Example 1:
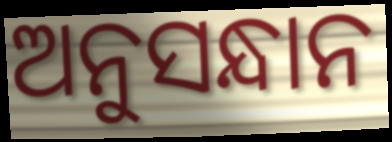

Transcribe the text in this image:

ଅନୁସନ୍ଧାନ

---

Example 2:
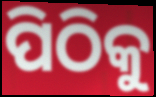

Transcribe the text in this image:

ପିଠିକୁ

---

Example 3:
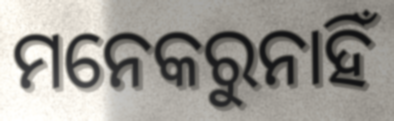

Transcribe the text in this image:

ମନେକରୁନାହିଁ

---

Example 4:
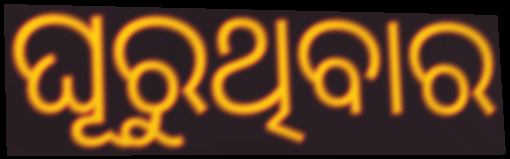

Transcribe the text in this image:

ଘୂରୁଥିବାର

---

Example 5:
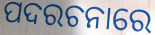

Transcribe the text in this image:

ପଦରଚନାରେ